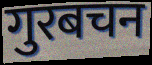
गुरबचन